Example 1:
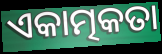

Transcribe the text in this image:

ଏକାତ୍ମକତା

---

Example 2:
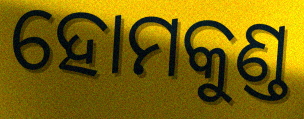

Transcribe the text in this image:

ହୋମକୁଣ୍ଡ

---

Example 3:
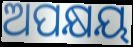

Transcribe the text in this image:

ଅପକ୍ଷୟ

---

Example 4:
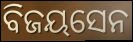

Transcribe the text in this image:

ବିଜୟସେନ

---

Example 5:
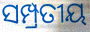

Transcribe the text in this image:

ସମ୍ପ୍ରତୀୟ